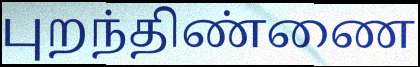
புறந்திண்ணை